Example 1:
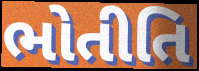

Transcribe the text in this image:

ભોતીતિ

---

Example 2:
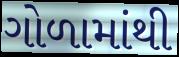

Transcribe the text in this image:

ગોળામાંથી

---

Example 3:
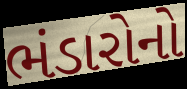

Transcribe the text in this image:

ભંડારોનો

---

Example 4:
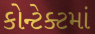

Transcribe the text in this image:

કોન્ટેક્ટમાં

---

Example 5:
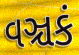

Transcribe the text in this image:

વઞ્ચકં